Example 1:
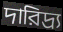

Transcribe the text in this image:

দারিদ্র্য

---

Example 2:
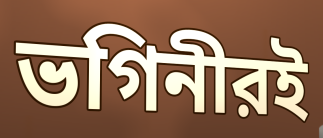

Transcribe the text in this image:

ভগিনীরই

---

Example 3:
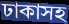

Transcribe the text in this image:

ঢাকাসহ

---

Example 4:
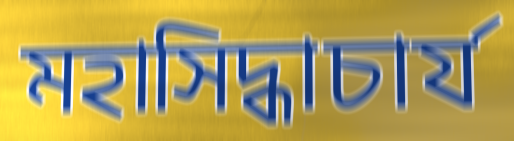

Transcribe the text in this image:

মহাসিদ্ধাচার্য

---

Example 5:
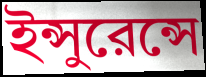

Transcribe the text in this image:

ইন্সুরেন্সে